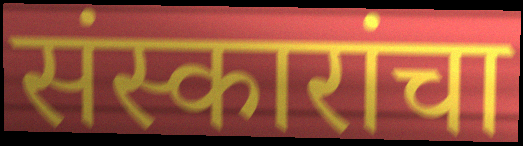
संस्कारांचा